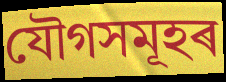
যৌগসমূহৰ